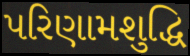
પરિણામશુદ્ધિ